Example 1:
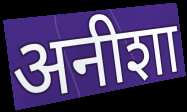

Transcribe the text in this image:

अनीशा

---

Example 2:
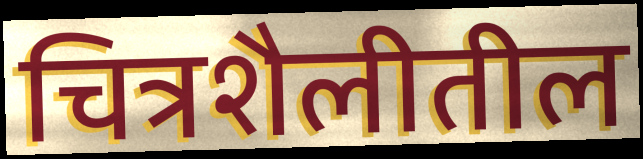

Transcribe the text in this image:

चित्रशैलीतील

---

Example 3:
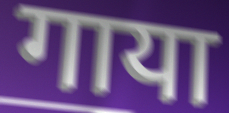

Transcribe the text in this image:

गाया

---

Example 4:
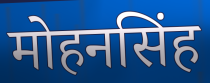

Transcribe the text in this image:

मोहनसिंह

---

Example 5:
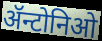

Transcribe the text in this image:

ॲन्टोनिओ